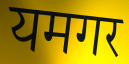
यमगर